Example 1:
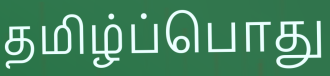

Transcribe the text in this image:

தமிழ்ப்பொது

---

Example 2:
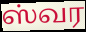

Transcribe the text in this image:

ஸ்வர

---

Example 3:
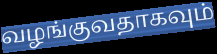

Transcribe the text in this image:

வழங்குவதாகவும்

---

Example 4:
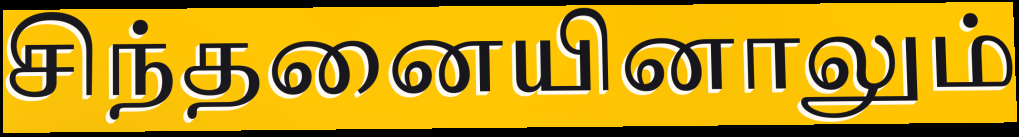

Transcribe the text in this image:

சிந்தனையினாலும்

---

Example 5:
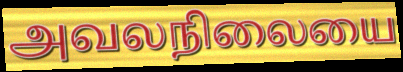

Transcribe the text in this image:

அவலநிலையை